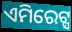
ଏମିରେଟ୍ସ